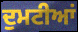
ਦੁਮਟੀਆਂ